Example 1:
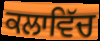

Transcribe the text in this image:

ਕਲਾਵਿੱਚ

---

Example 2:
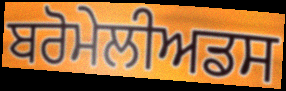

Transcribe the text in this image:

ਬਰੋਮੇਲੀਅਡਸ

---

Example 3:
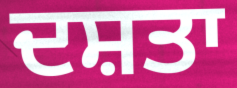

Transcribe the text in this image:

ਦਸ਼ਤਾ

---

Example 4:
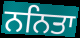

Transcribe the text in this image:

ਨਨਿਤਾ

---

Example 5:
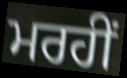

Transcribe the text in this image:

ਮਰਹੀਂ